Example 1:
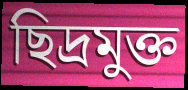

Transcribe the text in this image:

ছিদ্রমুক্ত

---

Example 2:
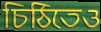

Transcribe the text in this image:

চিঠিতেও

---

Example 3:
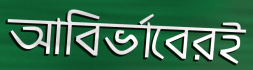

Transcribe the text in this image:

আবির্ভাবেরই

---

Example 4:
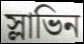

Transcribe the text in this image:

স্লাভিন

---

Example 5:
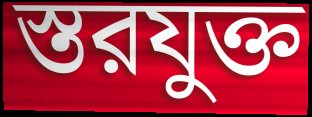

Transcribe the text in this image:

স্তরযুক্ত